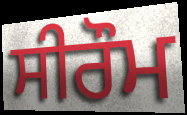
ਸੀਰੌਮ